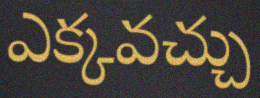
ఎక్కవచ్చు